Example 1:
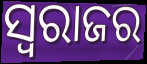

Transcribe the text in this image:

ସ୍ବରାଜର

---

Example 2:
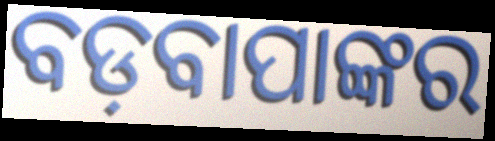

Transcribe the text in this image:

ବଡ଼ବାପାଙ୍କର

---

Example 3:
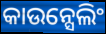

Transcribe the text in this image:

କାଉନ୍ସେଲିଂ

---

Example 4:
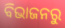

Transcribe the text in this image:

ବିଭାଜନରୁ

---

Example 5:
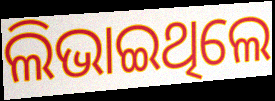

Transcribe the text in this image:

ଲିଭାଇଥିଲେ